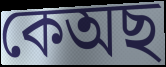
কেঅছ